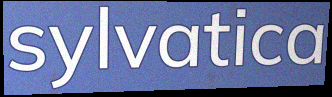
sylvatica